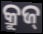
କ୍ରୁଜ୍